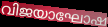
വിജയാഘോഷ